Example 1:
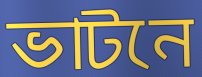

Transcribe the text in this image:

ভাটনে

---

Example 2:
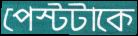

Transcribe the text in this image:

পেস্টটাকে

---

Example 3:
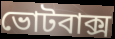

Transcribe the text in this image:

ভোটবাক্স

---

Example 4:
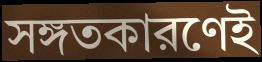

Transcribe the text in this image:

সঙ্গতকারণেই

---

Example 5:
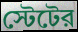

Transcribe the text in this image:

স্টেটের